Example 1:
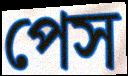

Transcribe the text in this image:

পেস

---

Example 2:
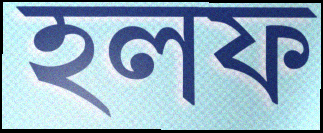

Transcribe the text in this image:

হলফ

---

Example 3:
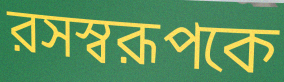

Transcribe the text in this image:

রসস্বরূপকে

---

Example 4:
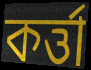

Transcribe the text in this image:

কর্ত্তা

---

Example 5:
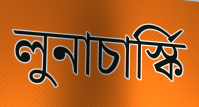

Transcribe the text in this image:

লুনাচার্স্কি